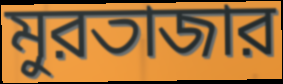
মুরতাজার